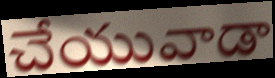
చేయువాడా